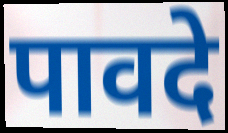
पावदे